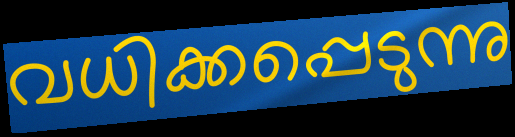
വധിക്കപ്പെടുന്നു